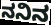
ನನಿನ